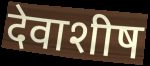
देवाशीष